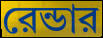
রেন্ডার